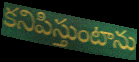
కనిపిస్తుంటాను